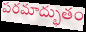
పరమాద్భుతం